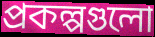
প্রকল্পগুলো